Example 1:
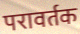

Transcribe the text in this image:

परावर्तक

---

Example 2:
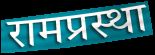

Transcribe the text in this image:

रामप्रस्था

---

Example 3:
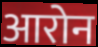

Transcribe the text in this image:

आरोन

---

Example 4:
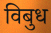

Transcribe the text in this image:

विबुध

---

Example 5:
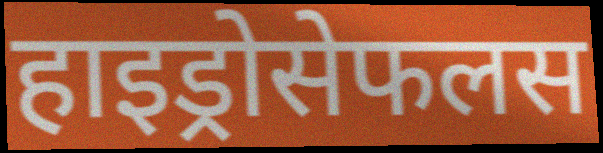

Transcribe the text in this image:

हाइड्रोसेफलस